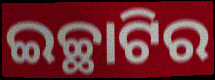
ଇଚ୍ଛାଟିର